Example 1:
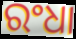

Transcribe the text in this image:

ରଂଧା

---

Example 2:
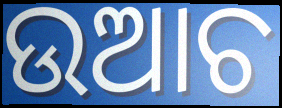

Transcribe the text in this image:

ଉଆଚ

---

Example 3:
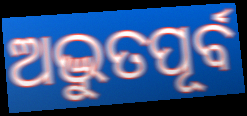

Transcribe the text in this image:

ଅଦ୍ଭୁତପୂର୍ବ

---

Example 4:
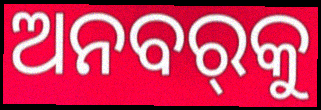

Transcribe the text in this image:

ଅନବର୍‌କୁ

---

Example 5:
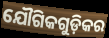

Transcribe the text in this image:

ଯୌଗିକଗୁଡ଼ିକର